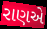
રાણએ